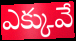
ఎక్కువే